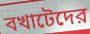
বখাটেদের